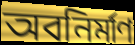
অবনির্মাণ